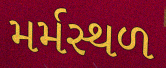
મર્મસ્થળ